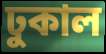
ঢুকাল